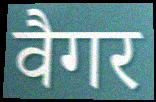
वैगर